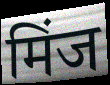
मिंज